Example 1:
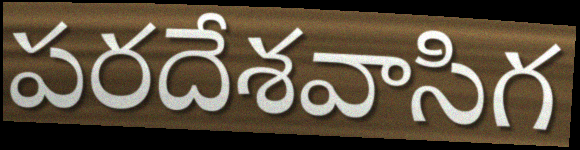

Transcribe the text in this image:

పరదేశవాసిగ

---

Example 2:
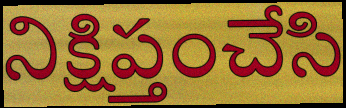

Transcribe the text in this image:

నిక్షిప్తంచేసి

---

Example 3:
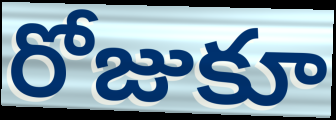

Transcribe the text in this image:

రోజుకూ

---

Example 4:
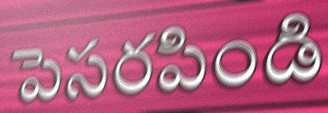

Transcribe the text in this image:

పెసరపిండి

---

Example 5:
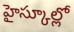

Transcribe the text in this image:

హైస్కూల్లో